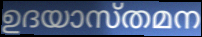
ഉദയാസ്തമന